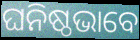
ଘନିଷ୍ଠଭାବେ